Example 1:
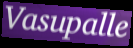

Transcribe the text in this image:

Vasupalle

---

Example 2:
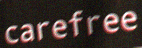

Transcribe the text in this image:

carefree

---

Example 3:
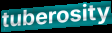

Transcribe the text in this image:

tuberosity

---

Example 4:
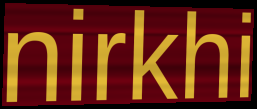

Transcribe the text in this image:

nirkhi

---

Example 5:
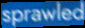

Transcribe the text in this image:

sprawled